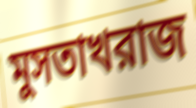
মুসতাখরাজ